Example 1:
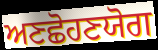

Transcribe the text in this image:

ਅਣਛੋਹਣਯੋਗ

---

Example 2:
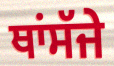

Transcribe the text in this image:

ਥਾਂਸੱਜੇ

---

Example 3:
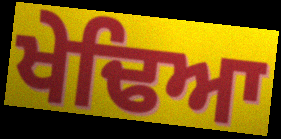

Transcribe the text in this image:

ਖੇਢਿਆ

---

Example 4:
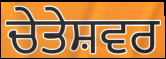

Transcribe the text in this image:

ਚੇਤੇਸ਼ਵਰ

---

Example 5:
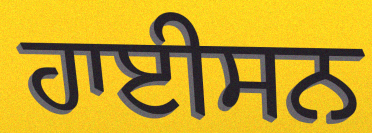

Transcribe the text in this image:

ਹਾਈਸਨ